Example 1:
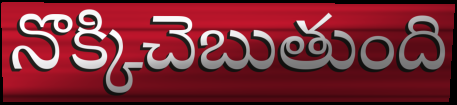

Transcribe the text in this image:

నొక్కిచెబుతుంది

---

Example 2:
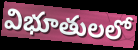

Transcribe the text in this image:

విభూతులలో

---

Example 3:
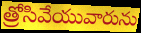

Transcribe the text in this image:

త్రోసివేయువారును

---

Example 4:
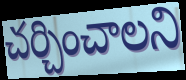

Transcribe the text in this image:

చర్చించాలని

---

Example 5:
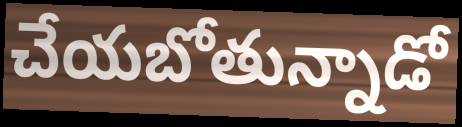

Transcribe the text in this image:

చేయబోతున్నాడో